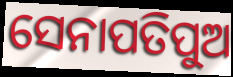
ସେନାପତିପୁଅ